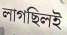
লাগছিলই